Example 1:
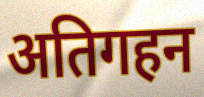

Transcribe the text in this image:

अतिगहन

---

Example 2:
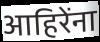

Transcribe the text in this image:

आहिरेंना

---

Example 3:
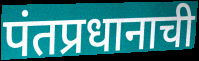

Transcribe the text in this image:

पंतप्रधानाची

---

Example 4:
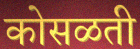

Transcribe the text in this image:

कोसळती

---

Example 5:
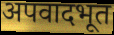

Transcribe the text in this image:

अपवादभूत